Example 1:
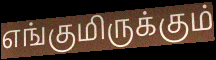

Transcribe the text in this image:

எங்குமிருக்கும்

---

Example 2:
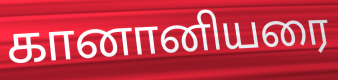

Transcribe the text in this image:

கானானியரை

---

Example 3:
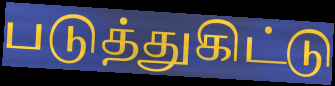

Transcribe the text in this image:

படுத்துகிட்டு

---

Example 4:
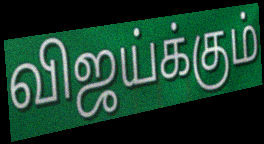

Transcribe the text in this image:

விஜய்க்கும்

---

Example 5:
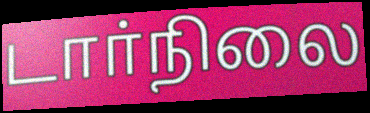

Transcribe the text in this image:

டார்நிலை